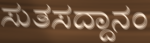
ಸುತಸದ್ದಾನಂ